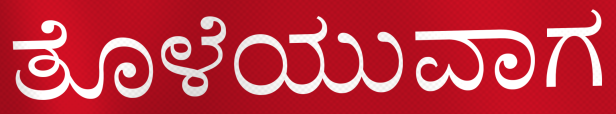
ತೊಳೆಯುವಾಗ